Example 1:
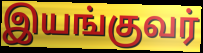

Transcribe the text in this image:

இயங்குவர்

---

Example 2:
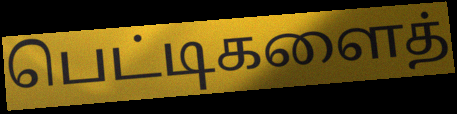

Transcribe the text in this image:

பெட்டிகளைத்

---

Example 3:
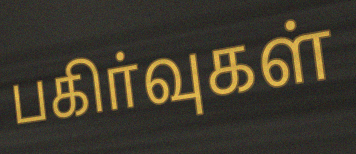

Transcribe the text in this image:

பகிர்வுகள்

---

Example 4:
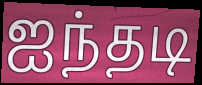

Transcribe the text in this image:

ஐந்தடி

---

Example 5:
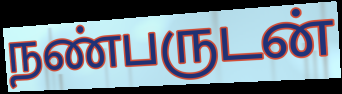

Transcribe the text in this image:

நண்பருடன்